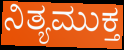
ನಿತ್ಯಮುಕ್ತ